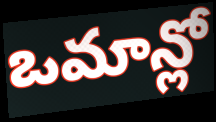
ఒమాన్లో